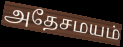
அதேசமயம்